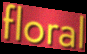
floral